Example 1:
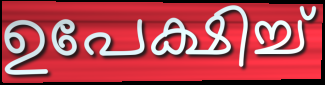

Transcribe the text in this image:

ഉപേക്ഷിച്ച്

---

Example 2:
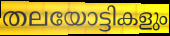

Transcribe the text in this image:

തലയോട്ടികളും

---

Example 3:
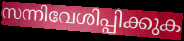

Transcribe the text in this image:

സന്നിവേശിപ്പിക്കുക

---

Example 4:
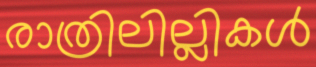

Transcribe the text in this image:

രാത്രിലില്ലികൾ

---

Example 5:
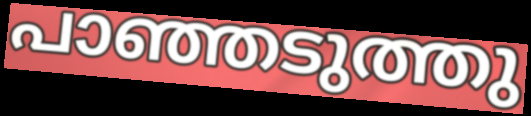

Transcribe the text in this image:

പാഞ്ഞടുത്തു